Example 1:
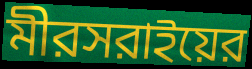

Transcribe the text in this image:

মীরসরাইয়ের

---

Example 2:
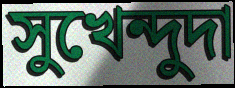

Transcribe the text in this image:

সুখেন্দুদা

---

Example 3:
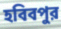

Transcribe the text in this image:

হবিবপুর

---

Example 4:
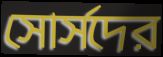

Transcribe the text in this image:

সোর্সদের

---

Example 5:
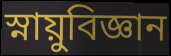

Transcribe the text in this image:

স্নায়ুবিজ্ঞান